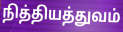
நித்தியத்துவம்